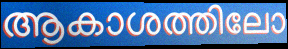
ആകാശത്തിലോ